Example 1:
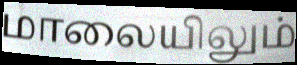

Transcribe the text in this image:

மாலையிலும்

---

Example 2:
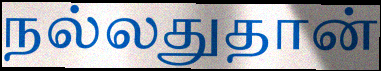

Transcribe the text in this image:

நல்லதுதான்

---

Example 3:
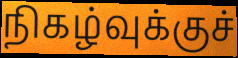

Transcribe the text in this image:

நிகழ்வுக்குச்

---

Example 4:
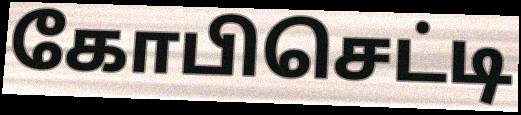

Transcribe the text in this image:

கோபிசெட்டி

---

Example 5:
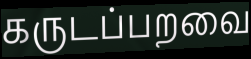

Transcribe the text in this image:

கருடப்பறவை